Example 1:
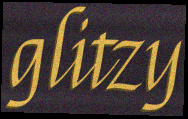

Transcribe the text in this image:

glitzy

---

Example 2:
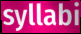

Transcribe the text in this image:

syllabi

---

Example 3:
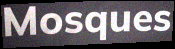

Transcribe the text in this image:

Mosques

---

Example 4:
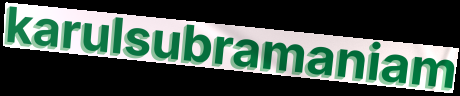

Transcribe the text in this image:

karulsubramaniam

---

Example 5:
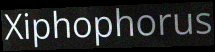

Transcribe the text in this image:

Xiphophorus